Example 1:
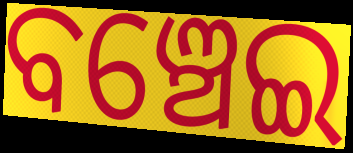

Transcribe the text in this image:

ବଞ୍ଚେଇ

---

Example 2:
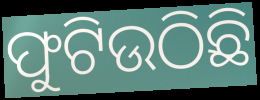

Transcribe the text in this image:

ଫୁଟିଉଠିଛି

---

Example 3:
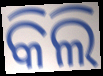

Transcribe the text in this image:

କିଲି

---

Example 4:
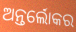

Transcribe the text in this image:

ଅନ୍ତର୍ଲୋକର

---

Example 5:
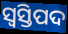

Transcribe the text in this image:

ସ୍ବସ୍ତିପଦ